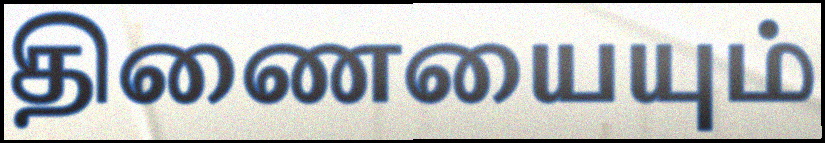
திணையையும்